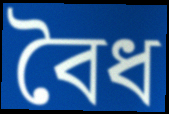
বৈধ